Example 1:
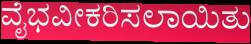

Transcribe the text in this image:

ವೈಭವೀಕರಿಸಲಾಯಿತು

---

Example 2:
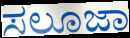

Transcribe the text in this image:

ಸಲೂಜಾ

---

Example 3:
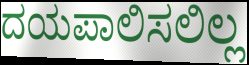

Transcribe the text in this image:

ದಯಪಾಲಿಸಲಿಲ್ಲ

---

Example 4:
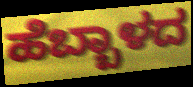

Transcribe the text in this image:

ಹೆಬ್ಬಾಳದ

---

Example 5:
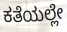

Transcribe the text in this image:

ಕತೆಯಲ್ಲೇ